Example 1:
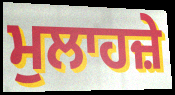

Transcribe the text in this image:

ਮੁਲਾਹਜ਼ੇ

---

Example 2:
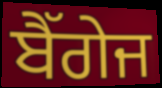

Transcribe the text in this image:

ਬੈੱਗੇਜ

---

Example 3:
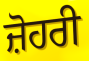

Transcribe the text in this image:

ਜ਼ੋਹਰੀ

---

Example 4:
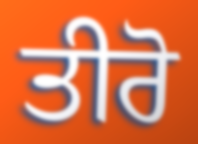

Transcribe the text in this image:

ਤੀਰੋ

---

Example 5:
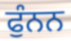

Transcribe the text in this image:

ਫੁੰਨਨ